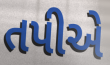
તપીએ